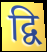
द्वि